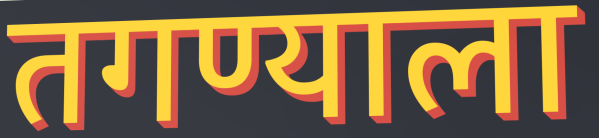
तगण्याला